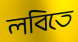
লবিতে